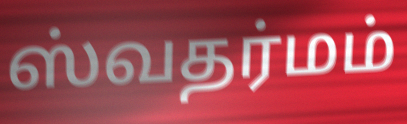
ஸ்வதர்மம்